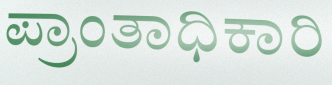
ಪ್ರಾಂತಾಧಿಕಾರಿ